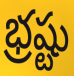
భ్రష్టు